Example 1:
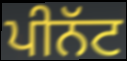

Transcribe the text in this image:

ਪੀਨੱਟ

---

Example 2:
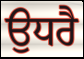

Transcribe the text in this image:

ਉਧਰੈ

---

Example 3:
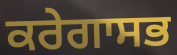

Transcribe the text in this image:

ਕਰੇਗਾਸਭ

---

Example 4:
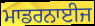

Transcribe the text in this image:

ਮਾਡਰਨਾਈਜ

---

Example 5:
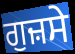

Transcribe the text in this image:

ਗੁਜ਼ਸੇ